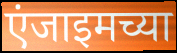
एंजाइमच्या